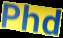
Phd